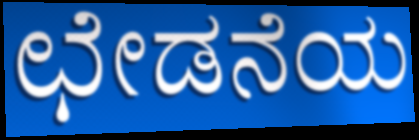
ಛೇಡನೆಯ